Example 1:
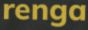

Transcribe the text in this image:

renga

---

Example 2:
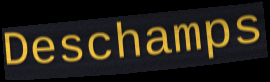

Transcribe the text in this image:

Deschamps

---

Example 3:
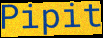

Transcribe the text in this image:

Pipit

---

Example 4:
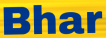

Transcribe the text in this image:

Bhar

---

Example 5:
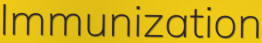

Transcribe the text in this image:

Immunization